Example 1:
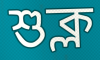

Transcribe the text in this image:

শুক্ল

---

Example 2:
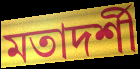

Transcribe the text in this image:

মতাদর্শী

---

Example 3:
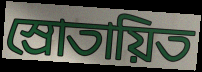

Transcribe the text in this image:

স্রোতায়িত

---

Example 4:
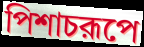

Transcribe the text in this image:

পিশাচরূপে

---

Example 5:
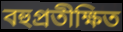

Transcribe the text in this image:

বহুপ্রতীক্ষিত